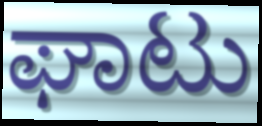
ಘಾಟು